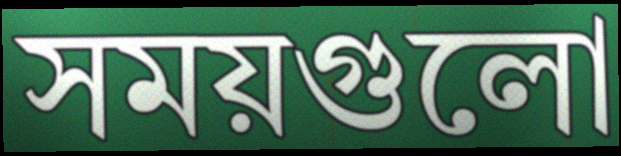
সময়গুলো